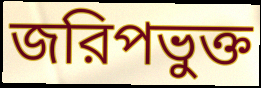
জরিপভুক্ত